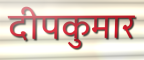
दीपकुमार